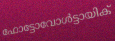
ഫോട്ടോവോൾട്ടായിക്